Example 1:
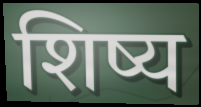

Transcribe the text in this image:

शिष्य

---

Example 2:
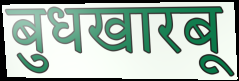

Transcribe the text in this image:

बुधखारबू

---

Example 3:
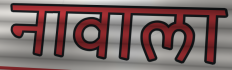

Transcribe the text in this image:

नावाला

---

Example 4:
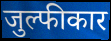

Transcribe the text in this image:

जुल्फीकार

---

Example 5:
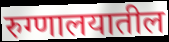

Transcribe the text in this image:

रुग्णालयातील